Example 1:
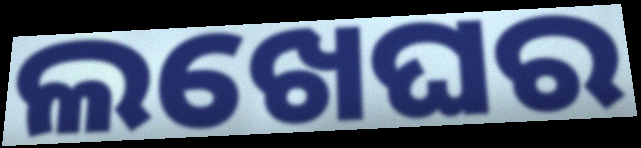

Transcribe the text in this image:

ଲଖେଘର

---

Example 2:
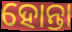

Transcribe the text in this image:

ହୋନ୍ତା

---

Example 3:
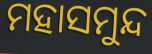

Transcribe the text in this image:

ମହାସମୁନ୍ଦ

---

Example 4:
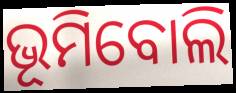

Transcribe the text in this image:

ଭୂମିବୋଲି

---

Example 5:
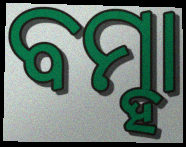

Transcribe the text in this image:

ବମ୍ହା